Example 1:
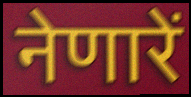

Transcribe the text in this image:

नेणारें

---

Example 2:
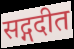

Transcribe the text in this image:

सद्गदीत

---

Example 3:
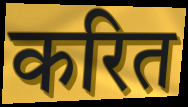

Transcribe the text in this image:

करित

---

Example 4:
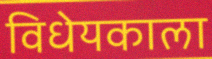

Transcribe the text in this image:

विधेयकाला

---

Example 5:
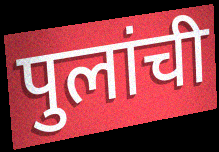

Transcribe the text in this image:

पुलांची